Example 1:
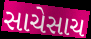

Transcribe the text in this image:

સાચેસાચ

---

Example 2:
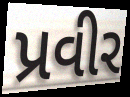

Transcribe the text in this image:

પ્રવીર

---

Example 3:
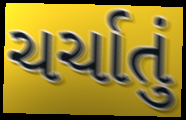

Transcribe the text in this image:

ચર્ચાતું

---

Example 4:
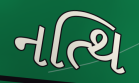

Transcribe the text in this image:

નત્થિ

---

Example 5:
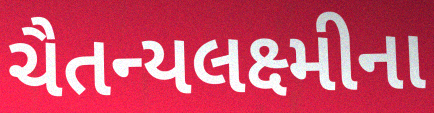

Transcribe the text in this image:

ચૈતન્યલક્ષ્મીના